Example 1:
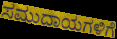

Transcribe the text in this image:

ಸಮುದಾಯಗಳಿಗೆ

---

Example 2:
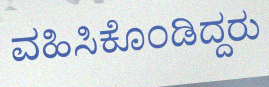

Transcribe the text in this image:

ವಹಿಸಿಕೊಂಡಿದ್ದರು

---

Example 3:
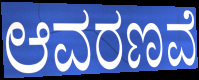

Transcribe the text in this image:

ಆವರಣವೆ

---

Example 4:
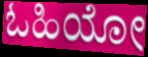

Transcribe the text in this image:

ಓಹಿಯೋ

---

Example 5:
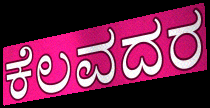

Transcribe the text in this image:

ಕೆಲವದರ